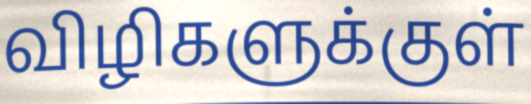
விழிகளுக்குள்